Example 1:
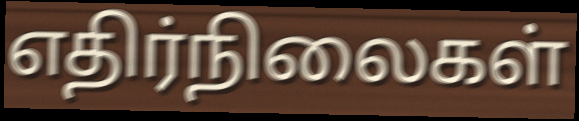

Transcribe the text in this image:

எதிர்நிலைகள்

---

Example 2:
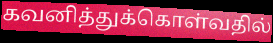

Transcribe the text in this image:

கவனித்துக்கொள்வதில்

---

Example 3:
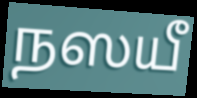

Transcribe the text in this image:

நஸயீ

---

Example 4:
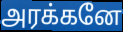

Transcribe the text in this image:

அரக்கனே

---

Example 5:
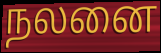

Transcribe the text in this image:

நலனை